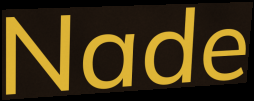
Nade